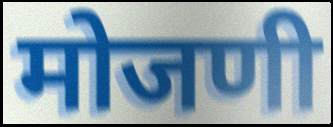
मोजणी